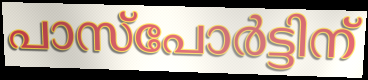
പാസ്പോർട്ടിന്